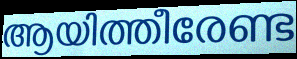
ആയിത്തീരേണ്ട